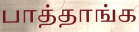
பாத்தாங்க